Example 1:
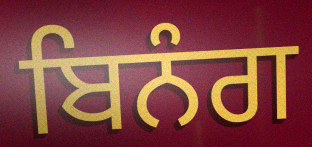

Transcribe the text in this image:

ਬਿਨੰਗ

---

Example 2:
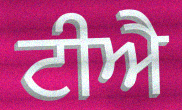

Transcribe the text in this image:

ਟੀਐ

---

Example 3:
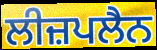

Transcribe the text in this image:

ਲੀਜ਼ਪਲੈਨ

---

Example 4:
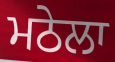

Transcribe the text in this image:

ਮਠੇਲਾ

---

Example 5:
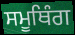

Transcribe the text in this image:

ਸਮੂਥਿੰਗ